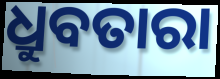
ଧ୍ରୁବତାରା